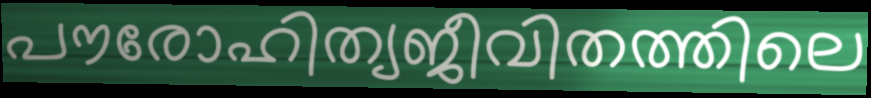
പൗരോഹിത്യജീവിതത്തിലെ